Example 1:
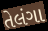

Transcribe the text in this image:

તેલંગા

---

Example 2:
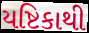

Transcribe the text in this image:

યષ્ટિકાથી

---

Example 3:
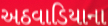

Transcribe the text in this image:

અઠવાડિયાના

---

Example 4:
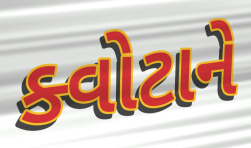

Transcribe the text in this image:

ક્વોટાને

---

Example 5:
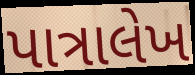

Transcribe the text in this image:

પાત્રાલેખ